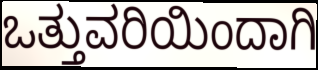
ಒತ್ತುವರಿಯಿಂದಾಗಿ